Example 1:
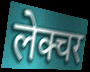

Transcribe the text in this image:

लेक्चर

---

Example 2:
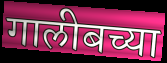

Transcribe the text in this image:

गालीबच्या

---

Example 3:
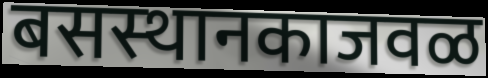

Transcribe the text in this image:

बसस्थानकाजवळ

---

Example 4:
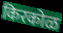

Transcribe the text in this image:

किरकोळ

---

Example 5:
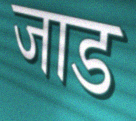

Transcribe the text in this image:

जाड